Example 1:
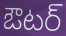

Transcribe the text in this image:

ఔటర్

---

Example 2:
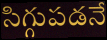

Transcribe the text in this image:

సిగ్గుపడనే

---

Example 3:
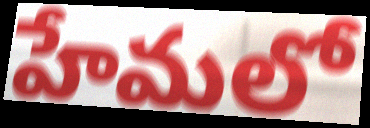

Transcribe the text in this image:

హేమలో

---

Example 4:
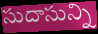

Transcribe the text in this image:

సుదాసున్ని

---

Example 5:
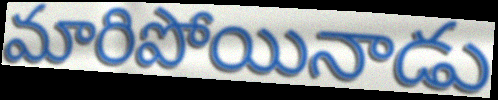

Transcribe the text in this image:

మారిపోయినాడు